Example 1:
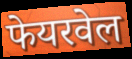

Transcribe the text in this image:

फेयरवेल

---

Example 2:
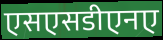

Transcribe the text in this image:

एसएसडीएनए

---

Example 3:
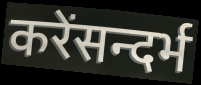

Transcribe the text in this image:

करेंसन्दर्भ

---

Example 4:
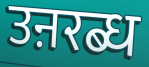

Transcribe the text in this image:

उऩरब्ध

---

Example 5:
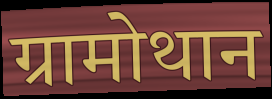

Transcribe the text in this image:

ग्रामोथान